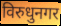
विरुधुनगर